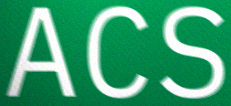
ACS